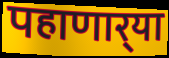
पहाणार्‍या